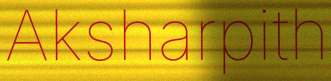
Aksharpith